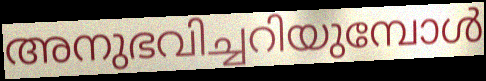
അനുഭവിച്ചറിയുമ്പോൾ